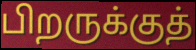
பிறருக்குத்